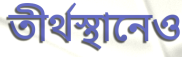
তীর্থস্থানেও